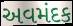
અવમંદક